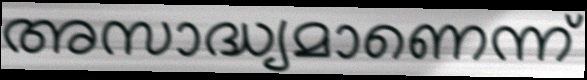
അസാദ്ധ്യമാണെന്ന്